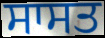
ਸਾਸਤ